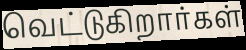
வெட்டுகிறார்கள்